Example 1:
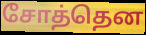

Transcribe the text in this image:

சோத்தென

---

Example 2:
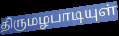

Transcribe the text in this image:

திருமழபாடியுள்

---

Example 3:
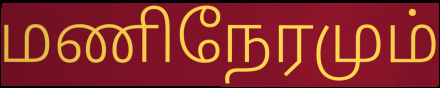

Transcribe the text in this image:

மணிநேரமும்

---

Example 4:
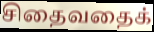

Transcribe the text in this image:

சிதைவதைக்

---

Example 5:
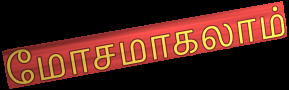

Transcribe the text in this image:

மோசமாகலாம்